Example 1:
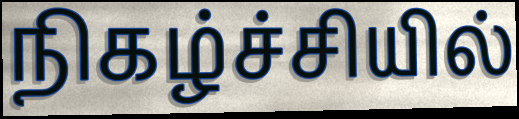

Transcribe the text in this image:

நிகழ்ச்சியில்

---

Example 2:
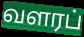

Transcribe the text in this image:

வளரப்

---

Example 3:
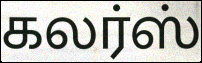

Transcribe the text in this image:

கலர்ஸ்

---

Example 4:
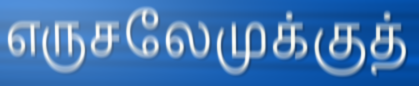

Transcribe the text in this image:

எருசலேமுக்குத்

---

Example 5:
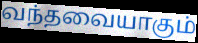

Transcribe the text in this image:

வந்தவையாகும்